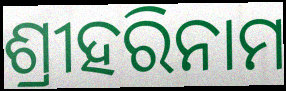
ଶ୍ରୀହରିନାମ